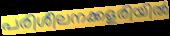
പരിശീലനക്കളരിയിൽ